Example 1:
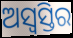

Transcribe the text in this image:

ଅସ୍ୱସ୍ତିର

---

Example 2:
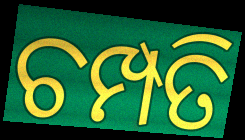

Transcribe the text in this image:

ଚମ୍ପତି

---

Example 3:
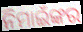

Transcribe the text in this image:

ନିମାଇଁଙ୍କର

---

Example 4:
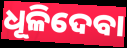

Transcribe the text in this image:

ଧୂଳିଦେବା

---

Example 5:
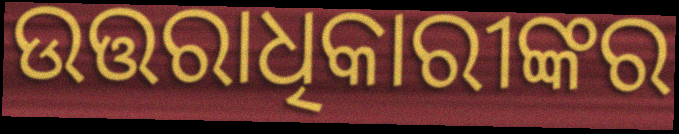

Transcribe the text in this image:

ଉତ୍ତରାଧିକାରୀଙ୍କର